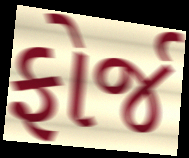
ફોર્જ